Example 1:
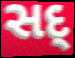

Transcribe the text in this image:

સદ્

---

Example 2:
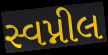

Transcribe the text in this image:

સ્વપ્નીલ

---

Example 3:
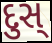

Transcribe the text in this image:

દુસ્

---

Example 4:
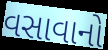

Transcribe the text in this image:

વસાવાનો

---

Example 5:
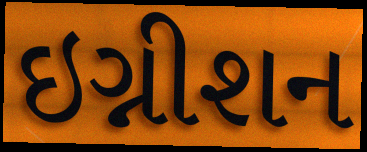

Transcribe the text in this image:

ઇગ્નીશન